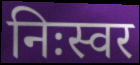
निःस्वर